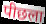
पीछला